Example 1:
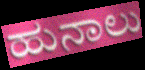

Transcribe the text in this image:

ಹುನಾಲು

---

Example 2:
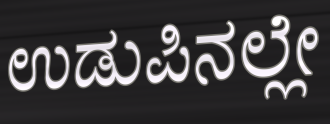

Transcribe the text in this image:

ಉಡುಪಿನಲ್ಲೇ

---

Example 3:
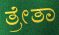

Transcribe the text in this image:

ತ್ರೇತಾ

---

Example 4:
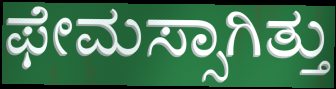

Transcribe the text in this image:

ಫೇಮಸ್ಸಾಗಿತ್ತು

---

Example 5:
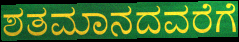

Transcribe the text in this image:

ಶತಮಾನದವರೆಗೆ